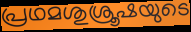
പ്രഥമശുശ്രൂഷയുടെ